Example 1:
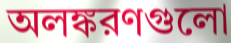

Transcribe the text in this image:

অলঙ্করণগুলো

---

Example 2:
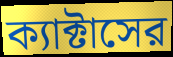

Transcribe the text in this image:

ক্যাক্টাসের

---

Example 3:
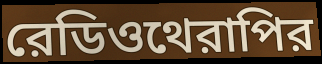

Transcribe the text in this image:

রেডিওথেরাপির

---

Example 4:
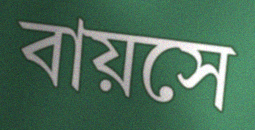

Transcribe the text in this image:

বায়সে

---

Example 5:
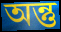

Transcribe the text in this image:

অন্তু